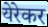
येरेकर